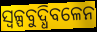
ସ୍ଵଳ୍ପବୁଦ୍ଧିବଳେନ